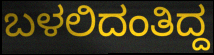
ಬಳಲಿದಂತಿದ್ದ